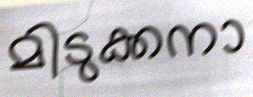
മിടുക്കനാ